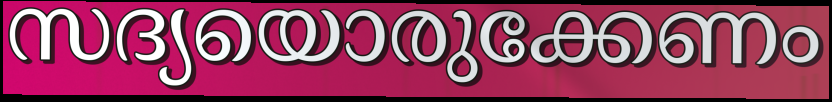
സദ്യയൊരുക്കേണം